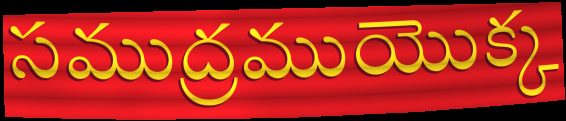
సముద్రముయొక్క